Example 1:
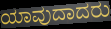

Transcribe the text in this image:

ಯಾವುದಾದರು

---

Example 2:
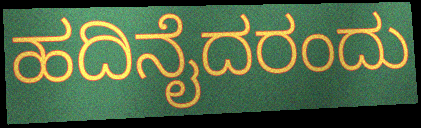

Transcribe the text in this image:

ಹದಿನೈದರಂದು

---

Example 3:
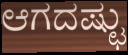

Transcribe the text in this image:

ಆಗದಷ್ಟು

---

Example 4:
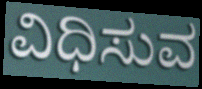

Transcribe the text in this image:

ವಿಧಿಸುವ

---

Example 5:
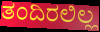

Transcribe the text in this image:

ತಂದಿರಲಿಲ್ಲ